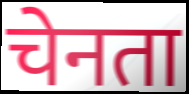
चेनता